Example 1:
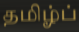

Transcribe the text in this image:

தமிழ்ப்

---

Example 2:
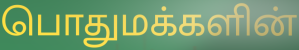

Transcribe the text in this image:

பொதுமக்களின்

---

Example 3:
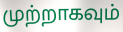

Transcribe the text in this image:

முற்றாகவும்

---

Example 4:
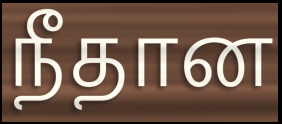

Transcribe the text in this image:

நீதான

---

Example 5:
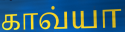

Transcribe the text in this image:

காவ்யா